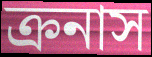
ক্রনাস